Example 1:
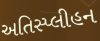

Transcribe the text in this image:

અતિસ્પ્લીહન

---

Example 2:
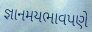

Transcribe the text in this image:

જ્ઞાનમયભાવપણે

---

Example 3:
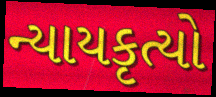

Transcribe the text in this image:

ન્યાયકૃત્યો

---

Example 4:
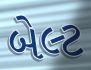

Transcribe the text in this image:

બેલ્ટ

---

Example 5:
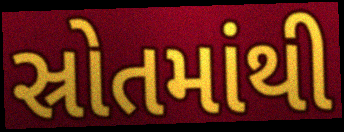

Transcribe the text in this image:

સ્રોતમાંથી